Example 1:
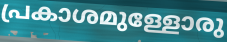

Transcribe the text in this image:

പ്രകാശമുള്ളോരു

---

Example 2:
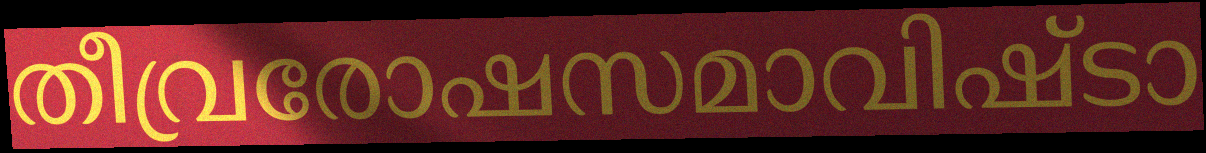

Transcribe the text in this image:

തീവ്രരോഷസമാവിഷ്ടാ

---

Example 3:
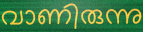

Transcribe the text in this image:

വാണിരുന്നു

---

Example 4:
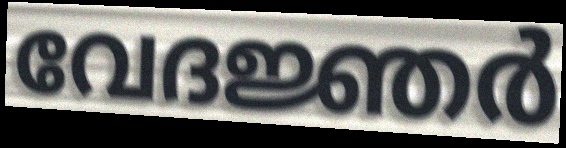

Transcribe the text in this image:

വേദജ്ഞർ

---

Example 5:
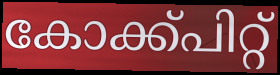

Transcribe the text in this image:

കോക്ക്പിറ്റ്